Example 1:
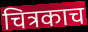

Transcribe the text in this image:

चित्रकाच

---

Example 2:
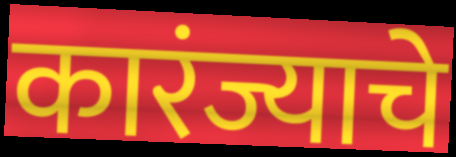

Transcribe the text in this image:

कारंज्याचे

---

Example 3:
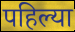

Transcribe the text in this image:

पहिल्या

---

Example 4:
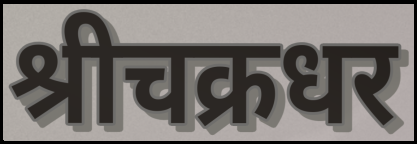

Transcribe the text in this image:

श्रीचक्रधर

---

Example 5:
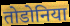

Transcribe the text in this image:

तोडोनिया